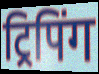
ट्रिपिंग